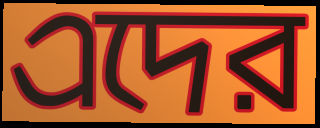
এদের